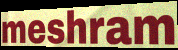
meshram